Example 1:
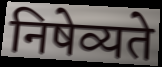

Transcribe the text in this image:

निषेव्यते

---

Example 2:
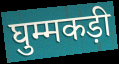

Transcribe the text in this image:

घुम्मकड़ी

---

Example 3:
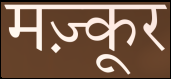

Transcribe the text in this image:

मज़्कूर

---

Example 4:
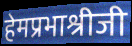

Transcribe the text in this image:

हेमप्रभाश्रीजी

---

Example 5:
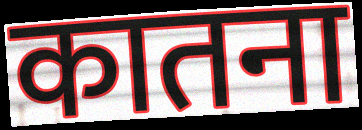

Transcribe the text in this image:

कातना